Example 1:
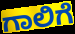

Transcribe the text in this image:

ಗಾಲಿಗೆ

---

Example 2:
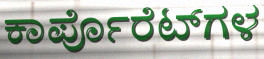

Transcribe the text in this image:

ಕಾರ್ಪೊರೆಟ್‌ಗಳ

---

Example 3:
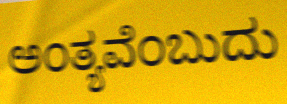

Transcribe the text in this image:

ಅಂತ್ಯವೆಂಬುದು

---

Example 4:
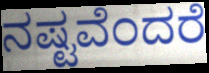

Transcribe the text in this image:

ನಷ್ಟವೆಂದರೆ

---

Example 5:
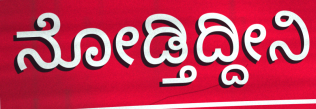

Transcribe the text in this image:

ನೋಡ್ತಿದ್ದೀನಿ